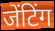
जेंटिंग